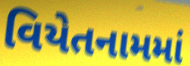
વિયેતનામમાં